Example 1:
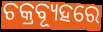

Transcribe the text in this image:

ଚକ୍ରବ୍ୟୂହରେ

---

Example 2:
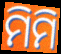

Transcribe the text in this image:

ମିମି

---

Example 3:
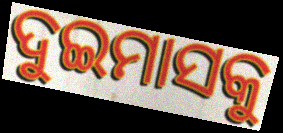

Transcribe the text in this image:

ଦୁଇମାସକୁ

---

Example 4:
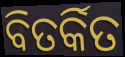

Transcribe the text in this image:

ବିତର୍କିତ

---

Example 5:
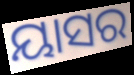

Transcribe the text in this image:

ୟାସର